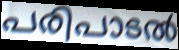
പരിപാടൽ